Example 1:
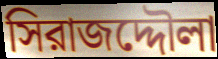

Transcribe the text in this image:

সিরাজদ্দৌলা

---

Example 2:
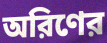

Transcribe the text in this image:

অরিণের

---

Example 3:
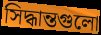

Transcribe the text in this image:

সিদ্ধান্তগুলো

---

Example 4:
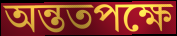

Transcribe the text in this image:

অন্ততপক্ষে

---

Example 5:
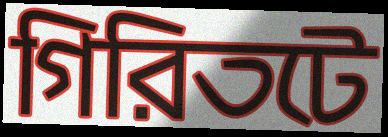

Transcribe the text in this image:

গিরিতটে